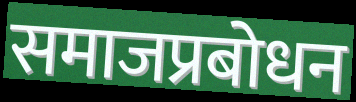
समाजप्रबोधन